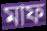
মাফ